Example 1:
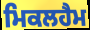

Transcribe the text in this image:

ਮਿਕਲਹੈਮ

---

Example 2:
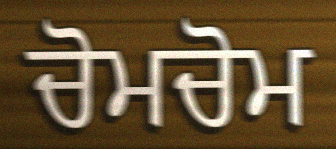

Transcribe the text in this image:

ਚੋਮਚੋਮ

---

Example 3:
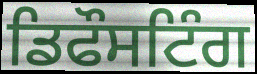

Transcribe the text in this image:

ਡਿਫੌਸਟਿੰਗ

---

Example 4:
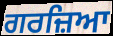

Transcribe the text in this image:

ਗਰਜ਼ਿਆ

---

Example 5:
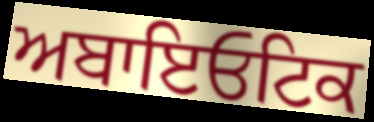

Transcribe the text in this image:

ਅਬਾਇਓਟਿਕ